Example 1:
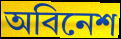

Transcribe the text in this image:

অবিনেশ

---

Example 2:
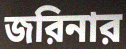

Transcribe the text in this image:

জরিনার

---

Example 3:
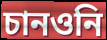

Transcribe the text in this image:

চানওনি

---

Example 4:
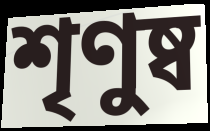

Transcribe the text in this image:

শৃণুষ্ব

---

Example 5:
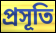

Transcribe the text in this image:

প্রসূতি